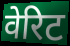
वेरिट